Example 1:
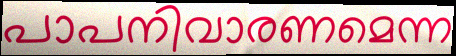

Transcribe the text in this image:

പാപനിവാരണമെന്ന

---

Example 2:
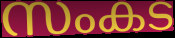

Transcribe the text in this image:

സംകട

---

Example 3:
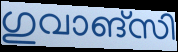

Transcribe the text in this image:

ഗുവാങ്സി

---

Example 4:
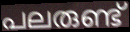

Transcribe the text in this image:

പലരുണ്ട്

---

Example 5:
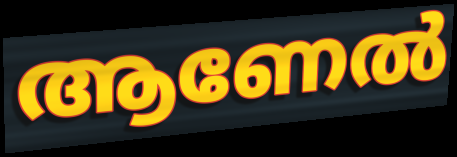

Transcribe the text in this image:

ആണേൽ